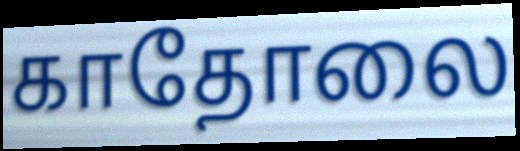
காதோலை